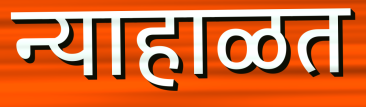
न्याहाळत